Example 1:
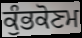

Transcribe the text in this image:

ਕੁੰਭਕੋਣਮ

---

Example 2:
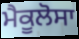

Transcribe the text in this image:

ਮੈਕੂਲੋਸਾ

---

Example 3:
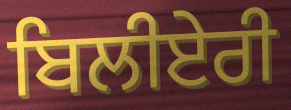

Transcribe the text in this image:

ਬਿਲੀਏਰੀ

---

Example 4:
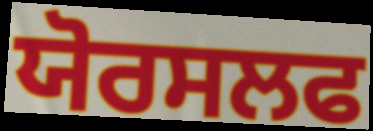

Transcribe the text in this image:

ਯੋਰਸਲਫ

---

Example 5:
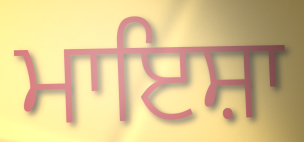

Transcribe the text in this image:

ਮਾਇਸ਼ਾ